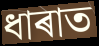
ধাৰাত